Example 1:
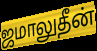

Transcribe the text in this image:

ஜமாலுதீன்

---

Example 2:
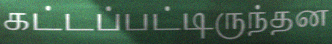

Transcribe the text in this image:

கட்டப்பட்டிருந்தன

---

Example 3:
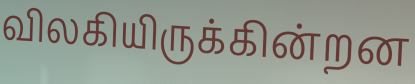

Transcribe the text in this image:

விலகியிருக்கின்றன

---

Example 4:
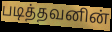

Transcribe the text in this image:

படித்தவனின்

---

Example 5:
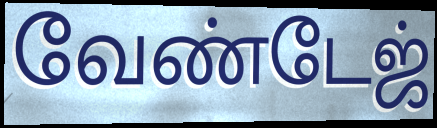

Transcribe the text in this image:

வேண்டேஜ்